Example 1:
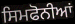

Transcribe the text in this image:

ਸਿਮਫੋਨੀਆਂ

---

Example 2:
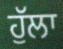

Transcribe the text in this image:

ਹੁੱਲਾ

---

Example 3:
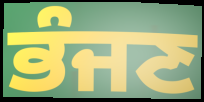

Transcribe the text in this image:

ਭੰਜਣ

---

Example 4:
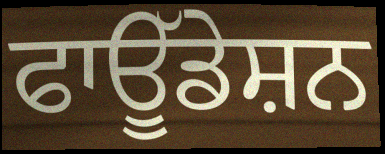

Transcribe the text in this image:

ਫਾਊੱਡੇਸ਼ਨ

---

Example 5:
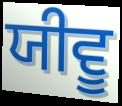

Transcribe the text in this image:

ਯੀਵੂ